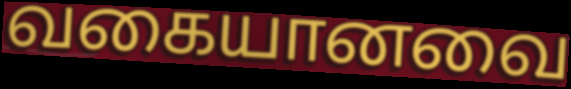
வகையானவை